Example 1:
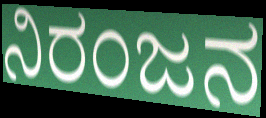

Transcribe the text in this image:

ನಿರಂಜನ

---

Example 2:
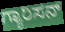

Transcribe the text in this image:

ಗ್ಯಾರಿಸನ್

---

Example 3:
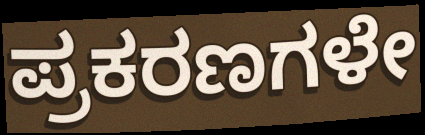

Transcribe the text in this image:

ಪ್ರಕರಣಗಳೇ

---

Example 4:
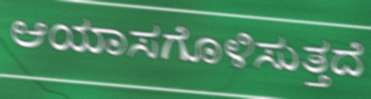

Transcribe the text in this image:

ಆಯಾಸಗೊಳಿಸುತ್ತದೆ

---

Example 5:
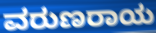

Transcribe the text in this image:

ವರುಣರಾಯ